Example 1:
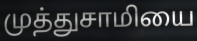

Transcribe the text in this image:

முத்துசாமியை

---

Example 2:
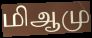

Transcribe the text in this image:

மிஆமு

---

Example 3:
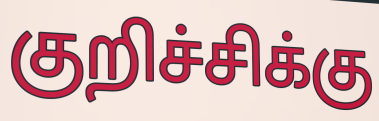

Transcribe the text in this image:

குறிச்சிக்கு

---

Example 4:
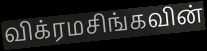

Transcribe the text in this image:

விக்ரமசிங்கவின்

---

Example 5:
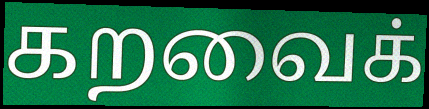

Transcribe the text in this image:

கறவைக்